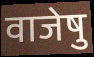
वाजेषु